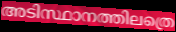
അടിസ്ഥാനത്തിലത്രെ